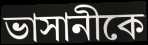
ভাসানীকে